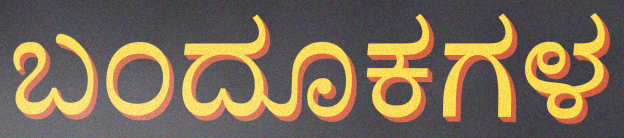
ಬಂದೂಕಗಳ